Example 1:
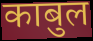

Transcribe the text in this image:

काबुल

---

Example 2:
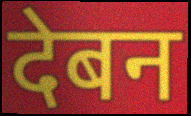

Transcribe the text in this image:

देबन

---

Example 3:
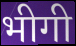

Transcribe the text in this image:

भीगी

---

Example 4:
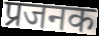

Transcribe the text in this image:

प्रजनक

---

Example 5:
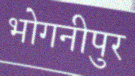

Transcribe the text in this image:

भोगनीपुर